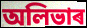
অলিভাৰ